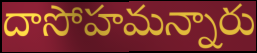
దాసోహమన్నారు